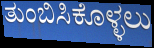
ತುಂಬಿಸಿಕೊಳ್ಳಲು